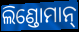
ଲିଣ୍ଡୋମାନ୍